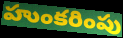
హుంకరింపు